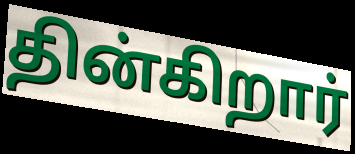
தின்கிறார்